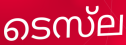
ടെസ്‌ല